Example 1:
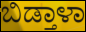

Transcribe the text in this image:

ಬಿಡ್ತಾಳಾ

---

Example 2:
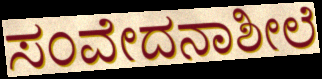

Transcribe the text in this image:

ಸಂವೇದನಾಶೀಲೆ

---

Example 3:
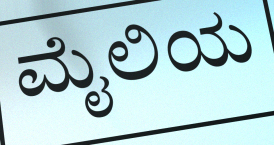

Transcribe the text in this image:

ಮೈಲಿಯ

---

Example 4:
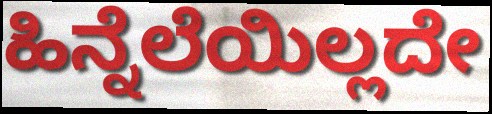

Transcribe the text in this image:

ಹಿನ್ನೆಲೆಯಿಲ್ಲದೇ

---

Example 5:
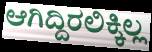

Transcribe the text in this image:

ಆಗಿದ್ದಿರಲಿಕ್ಕಿಲ್ಲ